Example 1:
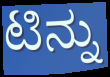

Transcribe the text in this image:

ಟಿನ್ನು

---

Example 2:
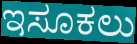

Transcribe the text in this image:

ಇಸೂಕಲು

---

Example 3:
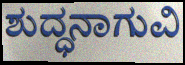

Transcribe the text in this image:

ಶುದ್ಧನಾಗುವಿ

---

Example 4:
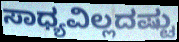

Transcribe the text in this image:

ಸಾಧ್ಯವಿಲ್ಲದಷ್ಟು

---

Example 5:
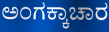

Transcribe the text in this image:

ಅಂಗಕ್ಕಾಚಾರ